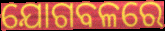
ଯୋଗବଳରେ